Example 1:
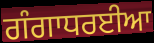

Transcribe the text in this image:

ਗੰਗਾਧਰਈਆ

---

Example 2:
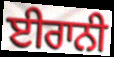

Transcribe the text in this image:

ਈਰਾਨੀ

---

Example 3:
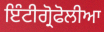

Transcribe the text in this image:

ਇੰਟੀਗ੍ਰੋਫੋਲੀਆ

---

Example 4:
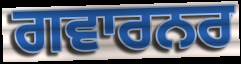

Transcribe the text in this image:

ਗਵਾਰਨਰ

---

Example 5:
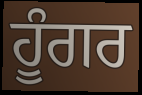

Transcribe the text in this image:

ਹੂੰਗਰ